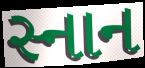
સ્નાન